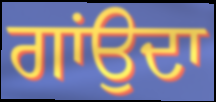
ਗਾਂਉਦਾ